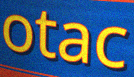
otac